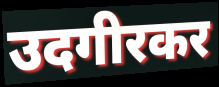
उदगीरकर